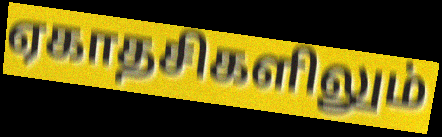
ஏகாதசிகளிலும்